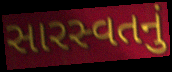
સારસ્વતનું